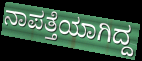
ನಾಪತ್ತೆಯಾಗಿದ್ದ